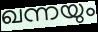
ഖന്നയും